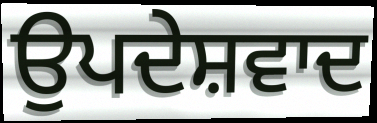
ਉਪਦੇਸ਼ਵਾਦ